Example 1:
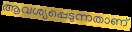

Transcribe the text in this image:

ആവശ്യപ്പെടുന്നതാണ്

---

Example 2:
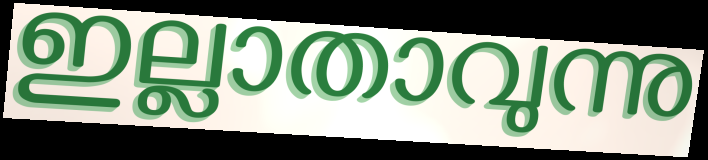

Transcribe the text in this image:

ഇല്ലാതാവുന്നു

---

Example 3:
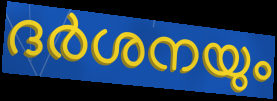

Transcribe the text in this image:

ദർശനയും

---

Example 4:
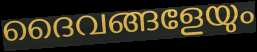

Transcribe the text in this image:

ദൈവങ്ങളേയും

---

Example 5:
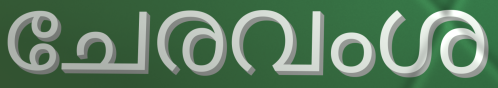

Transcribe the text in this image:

ചേരവംശ